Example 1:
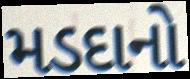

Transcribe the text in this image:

મડદાનો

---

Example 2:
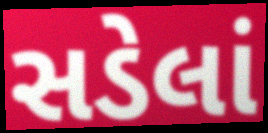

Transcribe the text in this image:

સડેલાં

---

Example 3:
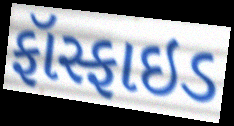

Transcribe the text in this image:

ફૉસ્ફાઇડ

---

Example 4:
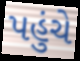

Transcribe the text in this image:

પહુંચે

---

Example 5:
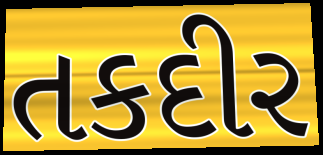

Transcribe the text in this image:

તકદીર